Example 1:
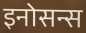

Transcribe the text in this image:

इनोसन्स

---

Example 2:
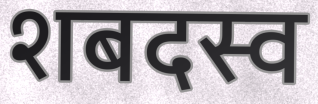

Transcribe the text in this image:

शबदस्व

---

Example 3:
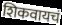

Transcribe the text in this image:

शिकवायचं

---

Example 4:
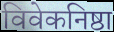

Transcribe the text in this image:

विवेकनिष्ठा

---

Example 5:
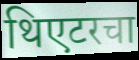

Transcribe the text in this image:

थिएटरचा